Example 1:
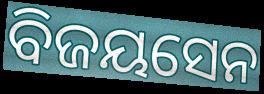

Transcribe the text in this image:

ବିଜୟସେନ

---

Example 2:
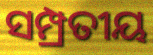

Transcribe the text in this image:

ସମ୍ପ୍ରତୀୟ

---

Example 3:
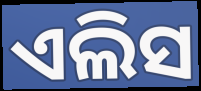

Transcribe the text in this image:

ଏଲିସ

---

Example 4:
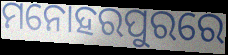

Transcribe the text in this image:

ମନୋହରପୁରରେ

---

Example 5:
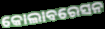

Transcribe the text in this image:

କୋଲାବରେସନ